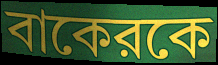
বাকেরকে